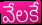
వేలకే